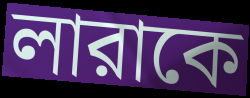
লারাকে